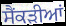
ਸੈਂਕੜੀਆਂ